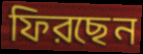
ফিরছেন